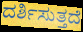
ದರ್ಶಿಸುತ್ತದೆ